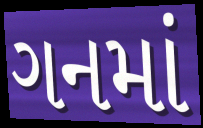
ગનમાં